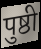
पुष्ठी